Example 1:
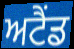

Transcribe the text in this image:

ਅਟੈਂਡ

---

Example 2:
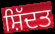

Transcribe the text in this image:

ਸ਼ਿੱਦਤ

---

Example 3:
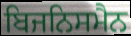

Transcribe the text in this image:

ਬਿਜਨਿਸਮੈਨ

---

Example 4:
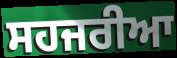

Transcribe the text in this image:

ਸਹਜਰੀਆ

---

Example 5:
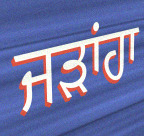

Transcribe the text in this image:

ਜੜਾਂਹਾ